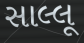
સાલ્લૂ